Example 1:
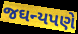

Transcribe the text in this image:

જઘન્યપણે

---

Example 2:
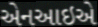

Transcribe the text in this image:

એનઆઇએ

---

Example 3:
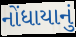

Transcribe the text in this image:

નોંધાયાનું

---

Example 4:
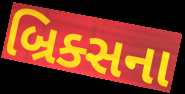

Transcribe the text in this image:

બ્રિક્સના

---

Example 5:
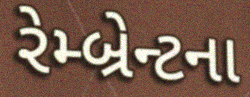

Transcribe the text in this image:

રેમ્બ્રેન્ટના